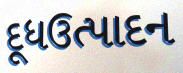
દૂધઉત્પાદન